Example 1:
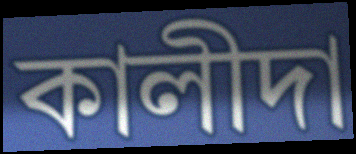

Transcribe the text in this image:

কালীদা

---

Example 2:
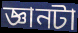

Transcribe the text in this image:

জ্ঞানটা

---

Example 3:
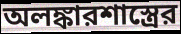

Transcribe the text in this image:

অলঙ্কারশাস্ত্রের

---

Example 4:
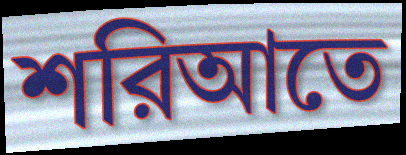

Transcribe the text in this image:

শরিআতে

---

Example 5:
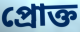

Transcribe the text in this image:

প্রোক্ত